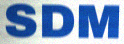
SDM